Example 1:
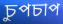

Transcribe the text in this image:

চুপচাপ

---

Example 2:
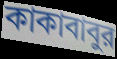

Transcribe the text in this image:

কাকাবাবুর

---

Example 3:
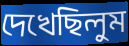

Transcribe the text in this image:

দেখেছিলুম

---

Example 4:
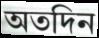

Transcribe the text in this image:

অতদিন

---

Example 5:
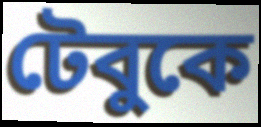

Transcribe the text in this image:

টেবুকে